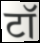
टॉ